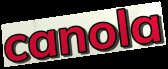
canola